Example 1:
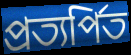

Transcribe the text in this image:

প্রত্যর্পিত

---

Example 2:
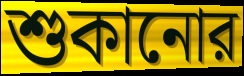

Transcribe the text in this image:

শুকানোর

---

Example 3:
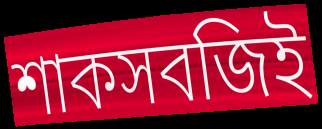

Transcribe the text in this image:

শাকসবজিই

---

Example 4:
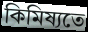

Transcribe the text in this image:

কিমিষ্যতে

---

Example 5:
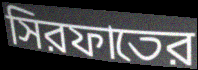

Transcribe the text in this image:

সিরফাতের